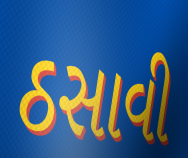
ઠસાવી